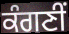
ਕੰਗਣੀਂ